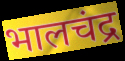
भालचंद्र